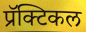
प्रॅक्टिकल